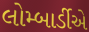
લોમ્બાર્ડીએ